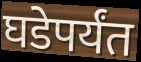
घडेपर्यंत